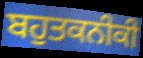
ਬਹੁਤਕਨੀਕੀ